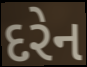
દરેન